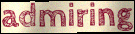
admiring